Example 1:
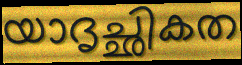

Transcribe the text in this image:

യാദൃച്ഛികത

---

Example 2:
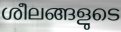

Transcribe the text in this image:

ശീലങ്ങളുടെ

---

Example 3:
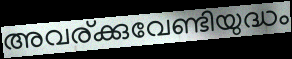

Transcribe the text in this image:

അവര്ക്കുവേണ്ടിയുദ്ധം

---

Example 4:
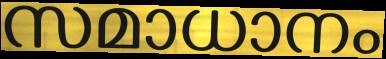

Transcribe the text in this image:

സമാധാനം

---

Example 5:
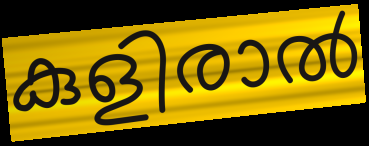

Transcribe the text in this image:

കുളിരാൽ